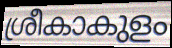
ശ്രീകാകുളം